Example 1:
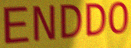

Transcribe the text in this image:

ENDDO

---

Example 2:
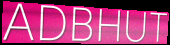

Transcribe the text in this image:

ADBHUT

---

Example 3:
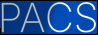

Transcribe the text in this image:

PACS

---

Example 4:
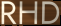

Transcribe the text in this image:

RHD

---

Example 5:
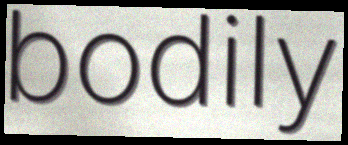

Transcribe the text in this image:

bodily